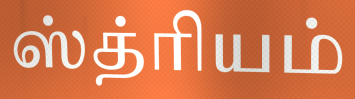
ஸ்த்ரியம்